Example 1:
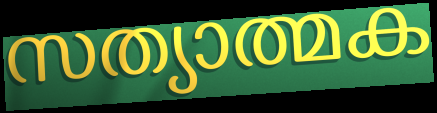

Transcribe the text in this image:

സത്യാത്മക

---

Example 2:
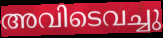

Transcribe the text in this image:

അവിടെവച്ചു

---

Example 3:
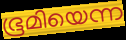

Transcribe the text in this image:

ഭൂമിയെന്ന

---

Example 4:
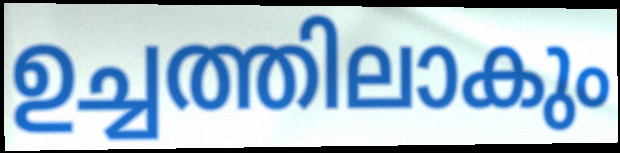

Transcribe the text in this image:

ഉച്ചത്തിലാകും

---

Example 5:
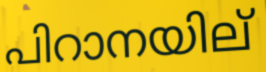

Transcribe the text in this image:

പിറാനയില്